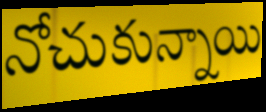
నోచుకున్నాయి